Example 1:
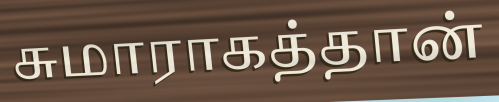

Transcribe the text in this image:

சுமாராகத்தான்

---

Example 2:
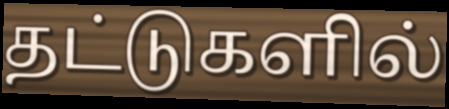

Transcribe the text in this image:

தட்டுகளில்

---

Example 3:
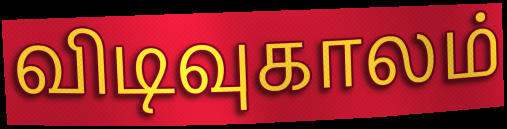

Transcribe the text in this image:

விடிவுகாலம்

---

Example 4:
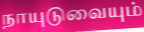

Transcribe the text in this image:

நாயுடுவையும்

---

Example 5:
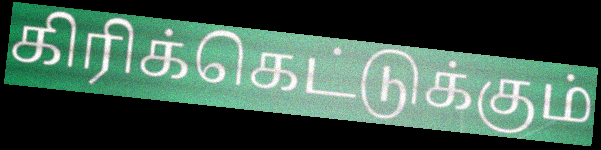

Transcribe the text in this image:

கிரிக்கெட்டுக்கும்